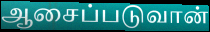
ஆசைப்படுவான்